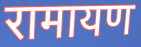
रामायण